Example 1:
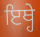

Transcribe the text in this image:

ਇਥ੍ਹੇ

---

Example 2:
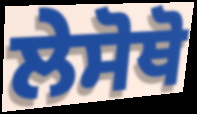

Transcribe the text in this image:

ਲੇਸੋਥੋ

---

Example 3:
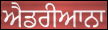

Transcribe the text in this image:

ਐਡਰੀਆਨਾ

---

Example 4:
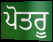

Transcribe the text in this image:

ਪੋਤਰੂ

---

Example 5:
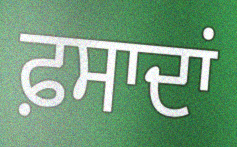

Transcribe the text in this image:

ਫ਼ਸਾਦਾਂ